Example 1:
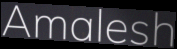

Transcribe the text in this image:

Amalesh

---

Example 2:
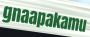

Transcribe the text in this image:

gnaapakamu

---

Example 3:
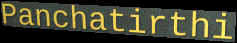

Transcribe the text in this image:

Panchatirthi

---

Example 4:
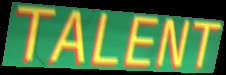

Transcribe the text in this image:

TALENT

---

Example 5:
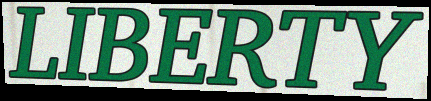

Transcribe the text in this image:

LIBERTY